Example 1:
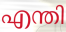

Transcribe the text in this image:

എന്തി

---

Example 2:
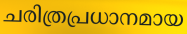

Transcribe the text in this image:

ചരിത്രപ്രധാനമായ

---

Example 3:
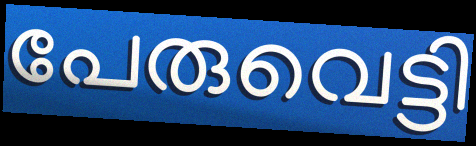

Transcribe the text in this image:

പേരുവെട്ടി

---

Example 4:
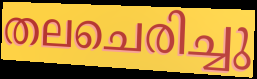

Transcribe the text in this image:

തലചെരിച്ചു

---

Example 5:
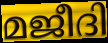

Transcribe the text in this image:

മജീദി